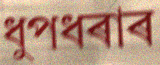
ধুপধৰাৰ